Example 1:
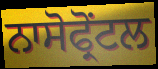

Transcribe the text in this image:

ਨਾਸੋਫ੍ਰੋਂਟਲ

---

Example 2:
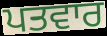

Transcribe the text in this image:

ਪਤਵਾਰ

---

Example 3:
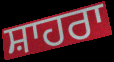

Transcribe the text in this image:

ਸ਼ਾਹਰਾ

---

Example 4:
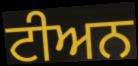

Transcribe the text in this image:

ਟੀਅਨ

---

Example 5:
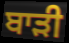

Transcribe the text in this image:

ਬਾੜੀ